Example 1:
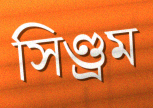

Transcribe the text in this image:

সিণ্ড্ৰম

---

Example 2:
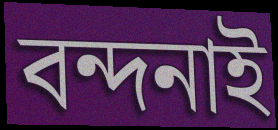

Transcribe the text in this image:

বন্দনাই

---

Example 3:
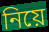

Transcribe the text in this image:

নিয়ে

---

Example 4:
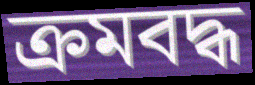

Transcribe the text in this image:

ক্ৰমবদ্ধ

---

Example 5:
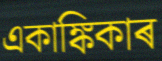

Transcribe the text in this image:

একাঙ্কিকাৰ